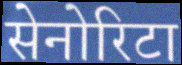
सेनोरिटा